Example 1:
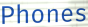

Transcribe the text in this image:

Phones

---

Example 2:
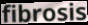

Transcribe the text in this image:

fibrosis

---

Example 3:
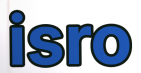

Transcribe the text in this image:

isro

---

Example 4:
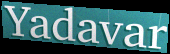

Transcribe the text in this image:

Yadavar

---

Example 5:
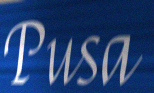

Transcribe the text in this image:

Pusa